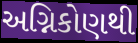
અગ્નિકોણથી